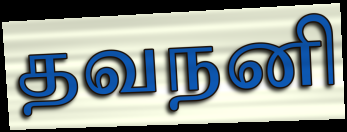
தவநனி